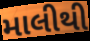
માલીથી